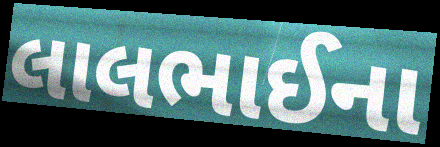
લાલભાઈના